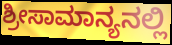
ಶ್ರೀಸಾಮಾನ್ಯನಲ್ಲಿ